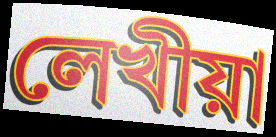
লেখীয়া